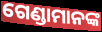
ଗେଣ୍ଡାମାନଙ୍କ